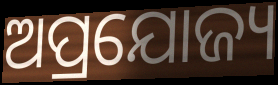
ଅପ୍ରଯୋଜ୍ୟ